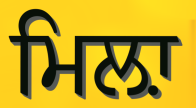
ਮਿਲ਼ਾ